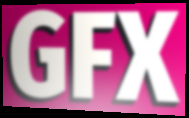
GFX